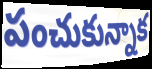
పంచుకున్నాక